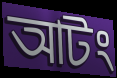
আটং